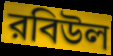
রবিউল